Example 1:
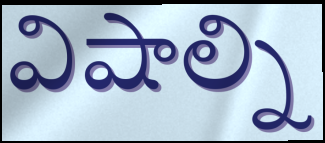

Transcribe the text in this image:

విషాల్ని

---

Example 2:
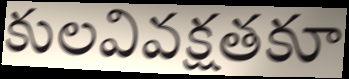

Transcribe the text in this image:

కులవివక్షతకూ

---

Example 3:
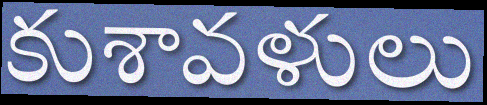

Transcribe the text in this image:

కుశావళులు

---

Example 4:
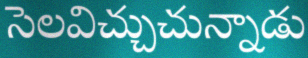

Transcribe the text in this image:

సెలవిచ్చుచున్నాడు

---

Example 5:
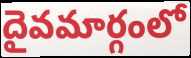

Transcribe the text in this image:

దైవమార్గంలో